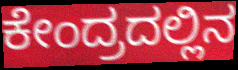
ಕೇಂದ್ರದಲ್ಲಿನ